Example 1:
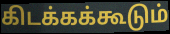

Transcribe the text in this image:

கிடக்கக்கூடும்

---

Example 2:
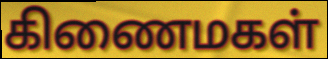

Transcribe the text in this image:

கிணைமகள்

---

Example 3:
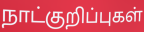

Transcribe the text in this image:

நாட்குறிப்புகள்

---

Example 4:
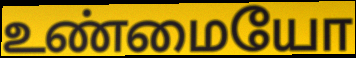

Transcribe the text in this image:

உண்மையோ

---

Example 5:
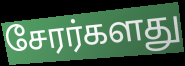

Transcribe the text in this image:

சேரர்களது